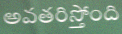
అవతరిస్తోంది